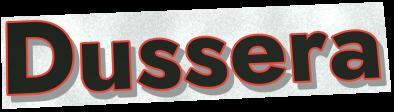
Dussera